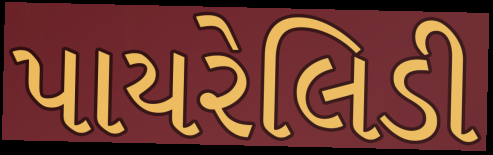
પાયરેલિડી